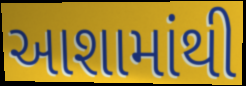
આશામાંથી